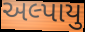
અલ્પાયુ